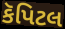
કૅપિટલ